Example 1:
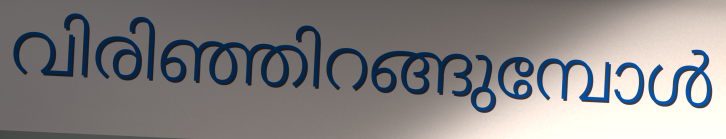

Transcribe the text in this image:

വിരിഞ്ഞിറങ്ങുമ്പോൾ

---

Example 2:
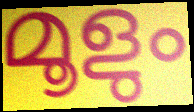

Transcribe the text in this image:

മൂളും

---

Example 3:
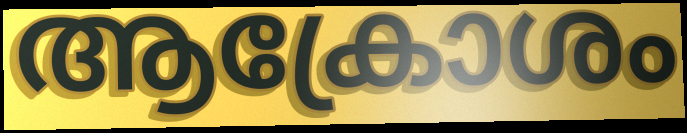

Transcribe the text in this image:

ആക്രോശം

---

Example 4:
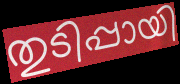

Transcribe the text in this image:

തുടിപ്പായി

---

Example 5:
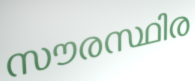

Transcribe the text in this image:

സൗരസ്ഥിര